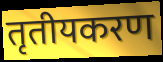
तृतीयकरण